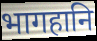
भागहानि